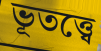
ভূতত্ত্বে